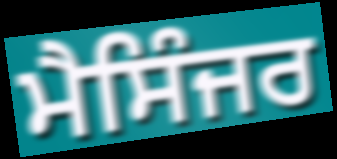
ਮੈਸਿੰਜਰ